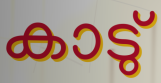
കാടു്